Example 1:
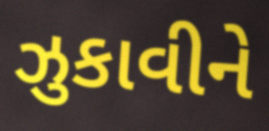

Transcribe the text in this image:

ઝુકાવીને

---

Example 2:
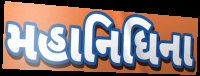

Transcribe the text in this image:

મહાનિધિના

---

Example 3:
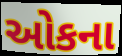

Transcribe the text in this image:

ઓકના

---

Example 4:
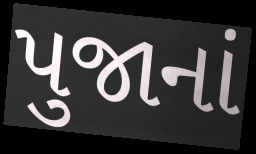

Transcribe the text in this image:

પુજાનાં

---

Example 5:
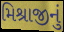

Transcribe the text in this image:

મિશ્રાજીનું